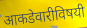
आकडेवारीविषयी